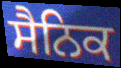
ਸੈਨਿਕ